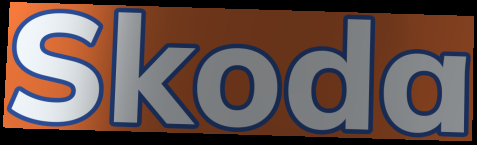
Skoda